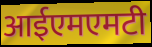
आईएमएमटी